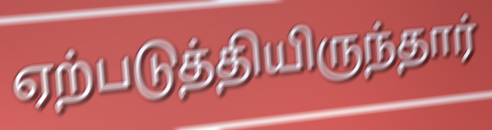
ஏற்படுத்தியிருந்தார்